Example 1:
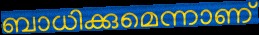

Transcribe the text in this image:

ബാധിക്കുമെന്നാണ്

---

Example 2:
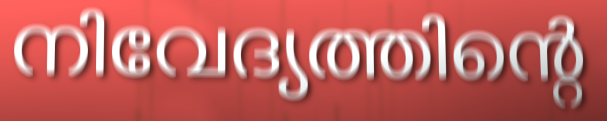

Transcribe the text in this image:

നിവേദ്യത്തിന്റെ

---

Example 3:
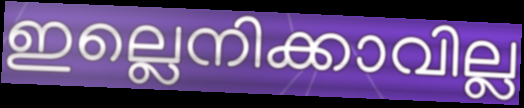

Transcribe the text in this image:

ഇല്ലെനിക്കാവില്ല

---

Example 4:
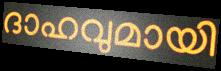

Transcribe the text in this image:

ദാഹവുമായി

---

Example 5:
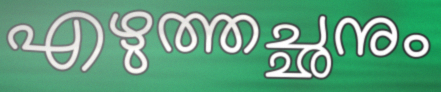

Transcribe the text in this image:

എഴുത്തച്ഛനും